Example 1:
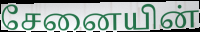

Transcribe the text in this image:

சேனையின்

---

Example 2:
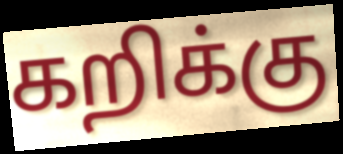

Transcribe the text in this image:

கறிக்கு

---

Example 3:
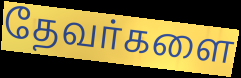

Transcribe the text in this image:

தேவர்களை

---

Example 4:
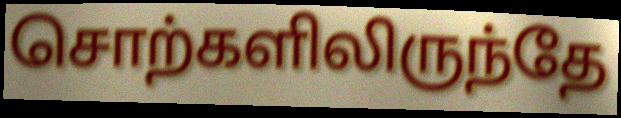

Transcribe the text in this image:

சொற்களிலிருந்தே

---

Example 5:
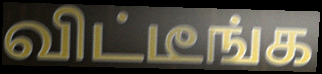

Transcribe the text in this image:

விட்டீங்க